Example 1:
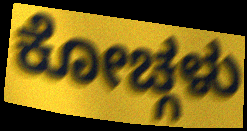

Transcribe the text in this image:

ಕೋಚ್ಗಳು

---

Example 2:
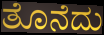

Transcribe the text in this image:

ತೊನೆದು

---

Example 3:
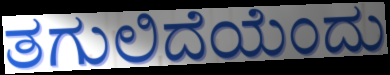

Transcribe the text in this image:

ತಗುಲಿದೆಯೆಂದು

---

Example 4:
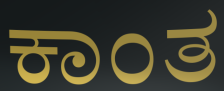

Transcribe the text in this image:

ಕಾಂತ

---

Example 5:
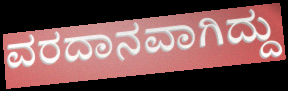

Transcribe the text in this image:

ವರದಾನವಾಗಿದ್ದು